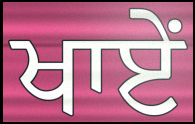
ਖਾਏਂ